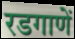
रडगाणें